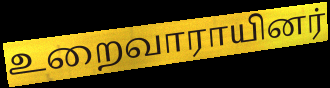
உறைவாராயினர்